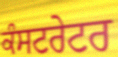
ਕੰਸਟਰੇਟਰ